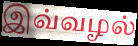
இவ்வழல்